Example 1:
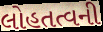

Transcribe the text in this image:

લોહતત્વની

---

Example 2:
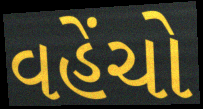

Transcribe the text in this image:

વહેંચો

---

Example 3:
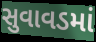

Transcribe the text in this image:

સુવાવડમાં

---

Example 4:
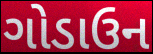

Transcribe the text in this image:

ગોડાઉન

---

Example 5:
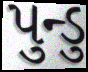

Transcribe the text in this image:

પુન્ડુ